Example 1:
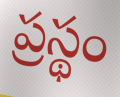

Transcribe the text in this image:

ప్రస్థం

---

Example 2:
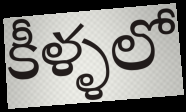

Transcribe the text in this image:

కీళ్ళలో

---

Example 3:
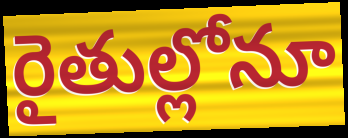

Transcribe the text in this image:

రైతుల్లోనూ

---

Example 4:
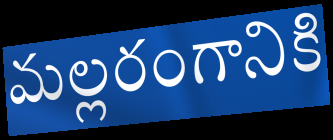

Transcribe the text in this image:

మల్లరంగానికి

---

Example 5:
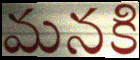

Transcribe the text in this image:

మనకి